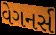
વેગનર્સ